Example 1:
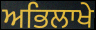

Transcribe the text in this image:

ਅਭਿਲਾਖੇ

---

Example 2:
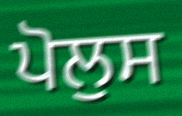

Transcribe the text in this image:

ਪੋਲੁਸ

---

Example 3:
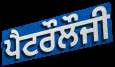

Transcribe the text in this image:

ਪੈਟਰੌਲੌਜੀ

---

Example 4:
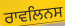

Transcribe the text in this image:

ਰਾਵਲਿਨਸ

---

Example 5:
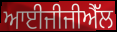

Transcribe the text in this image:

ਆਈਜੀਜੀਐੱਲ